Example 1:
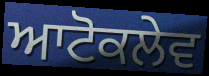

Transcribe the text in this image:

ਆਟੋਕਲੇਵ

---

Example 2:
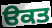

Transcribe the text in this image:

ੳਕਤ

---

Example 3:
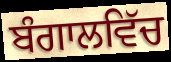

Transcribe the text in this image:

ਬੰਗਾਲਵਿੱਚ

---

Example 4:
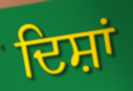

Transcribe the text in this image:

ਦਿਸ਼ਾਂ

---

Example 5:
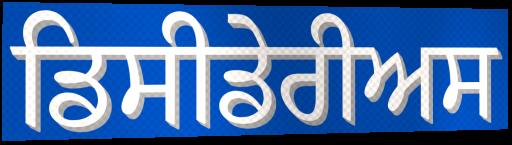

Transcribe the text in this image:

ਡਿਸੀਡੇਰੀਅਸ